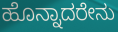
ಹೊನ್ನಾದರೇನು